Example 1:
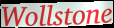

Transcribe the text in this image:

Wollstone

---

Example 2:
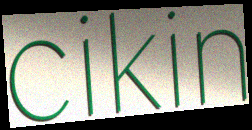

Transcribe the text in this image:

cikin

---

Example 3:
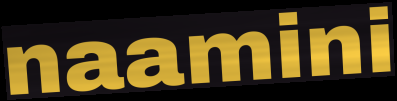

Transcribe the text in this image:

naamini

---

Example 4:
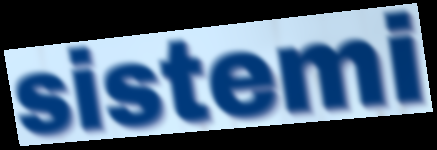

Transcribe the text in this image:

sistemi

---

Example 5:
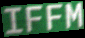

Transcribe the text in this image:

IFFM